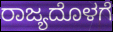
ರಾಜ್ಯದೊಳಗೆ